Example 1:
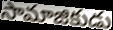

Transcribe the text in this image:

సామాజికుడు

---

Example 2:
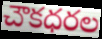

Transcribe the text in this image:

చౌకధరల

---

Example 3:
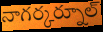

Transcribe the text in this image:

నాగర్కర్నూల్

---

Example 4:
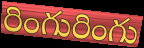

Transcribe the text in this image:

రింగురింగు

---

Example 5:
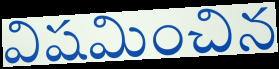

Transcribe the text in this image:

విషమించిన